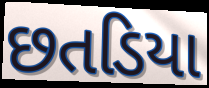
છતડિયા